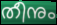
തീനും